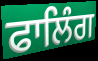
ਫਾਲਿੰਗ